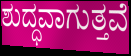
ಶುದ್ಧವಾಗುತ್ತವೆ